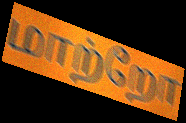
மாற்றோ